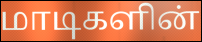
மாடிகளின்